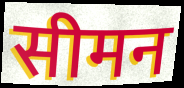
सीमन